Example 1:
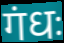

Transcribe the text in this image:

गंधः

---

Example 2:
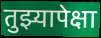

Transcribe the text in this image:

तुझ्यापेक्षा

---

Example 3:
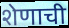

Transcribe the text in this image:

शेणाची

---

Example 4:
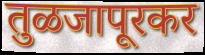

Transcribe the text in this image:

तुळजापूरकर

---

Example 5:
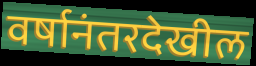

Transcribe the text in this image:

वर्षानंतरदेखील